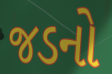
જડનો